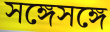
সঙ্গেসঙ্গে